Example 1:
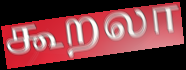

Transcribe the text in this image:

கூறலா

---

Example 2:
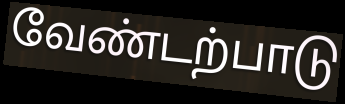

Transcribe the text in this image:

வேண்டற்பாடு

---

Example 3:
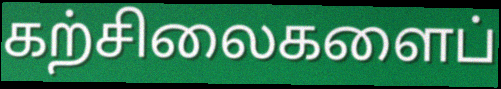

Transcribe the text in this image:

கற்சிலைகளைப்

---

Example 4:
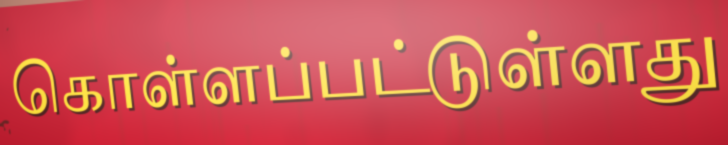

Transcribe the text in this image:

கொள்ளப்பட்டுள்ளது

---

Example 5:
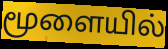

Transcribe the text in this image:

மூளையில்